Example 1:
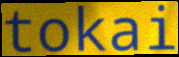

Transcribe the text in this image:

tokai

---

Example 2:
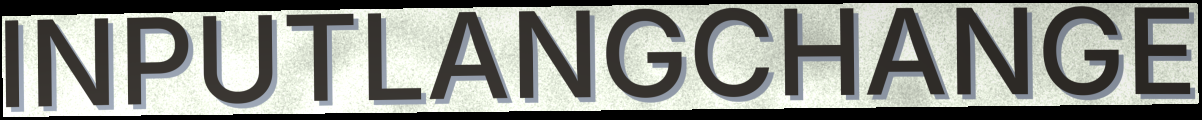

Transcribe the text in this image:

INPUTLANGCHANGE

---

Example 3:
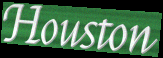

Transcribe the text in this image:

Houston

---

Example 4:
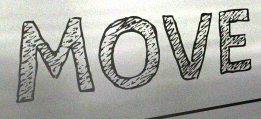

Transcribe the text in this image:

MOVE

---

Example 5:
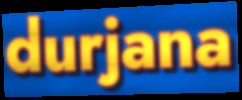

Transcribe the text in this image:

durjana